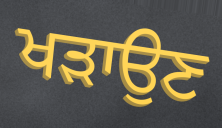
ਖੜਾਉਣ